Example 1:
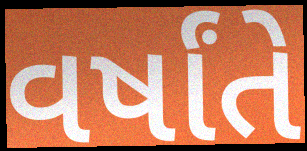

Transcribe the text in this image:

વર્ષાંતે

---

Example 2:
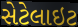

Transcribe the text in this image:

સેટેલાઇટ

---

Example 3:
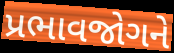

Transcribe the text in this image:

પ્રભાવજોગને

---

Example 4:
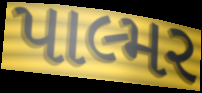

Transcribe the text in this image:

પાલ્મર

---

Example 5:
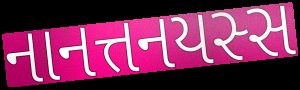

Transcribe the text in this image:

નાનત્તનયસ્સ